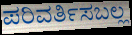
ಪರಿವರ್ತಿಸಬಲ್ಲ